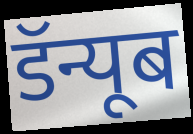
डॅन्यूब